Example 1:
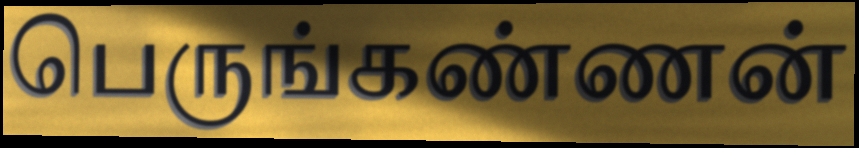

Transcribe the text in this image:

பெருங்கண்ணன்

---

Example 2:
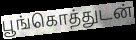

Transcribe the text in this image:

பூங்கொத்துடன்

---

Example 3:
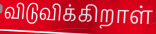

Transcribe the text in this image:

விடுவிக்கிறாள்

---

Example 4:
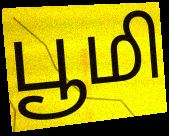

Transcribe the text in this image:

பூமி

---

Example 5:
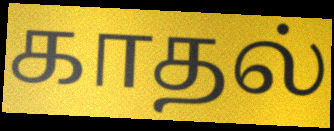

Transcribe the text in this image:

காதல்